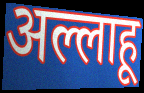
अल्लाहू